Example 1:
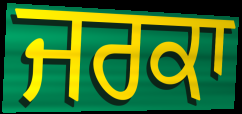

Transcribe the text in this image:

ਜਰਕਾ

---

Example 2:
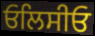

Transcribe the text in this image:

ਓਲਿਸੀਓ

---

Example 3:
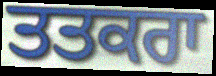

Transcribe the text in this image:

ਤਤਕਰਾ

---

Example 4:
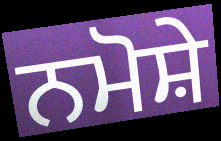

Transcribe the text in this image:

ਨਮੋਸ਼ੇ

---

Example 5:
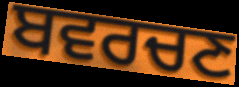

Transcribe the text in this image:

ਬਵਰਚਣ